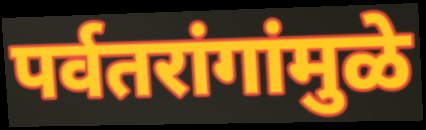
पर्वतरांगांमुळे